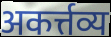
अकर्त्तव्य